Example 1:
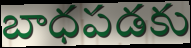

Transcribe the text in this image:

బాధపడకు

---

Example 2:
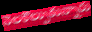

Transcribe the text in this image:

నెలకొల్పుకున్నారు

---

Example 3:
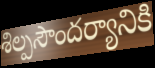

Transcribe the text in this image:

శిల్పసౌందర్యానికి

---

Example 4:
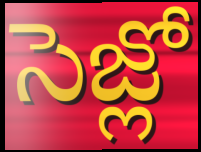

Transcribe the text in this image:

సెజ్లో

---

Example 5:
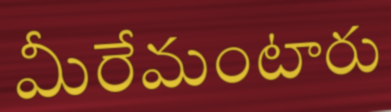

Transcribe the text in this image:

మీరేమంటారు